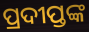
ପ୍ରଦୀପ୍ତଙ୍କ